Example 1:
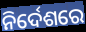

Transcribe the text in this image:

ନିର୍ଦେଶରେ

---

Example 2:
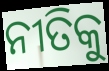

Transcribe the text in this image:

ନୀତିକୁ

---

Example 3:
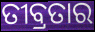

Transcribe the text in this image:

ତୀବ୍ରତାର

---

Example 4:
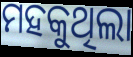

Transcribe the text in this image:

ମହକୁଥିଲା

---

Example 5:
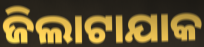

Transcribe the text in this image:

ଜିଲାଟାଯାକ